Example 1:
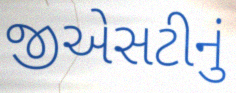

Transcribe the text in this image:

જીએસટીનું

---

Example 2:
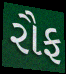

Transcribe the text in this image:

રૌફ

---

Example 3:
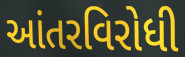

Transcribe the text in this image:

આંતરવિરોધી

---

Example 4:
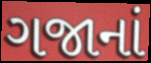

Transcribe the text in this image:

ગજાનાં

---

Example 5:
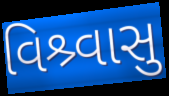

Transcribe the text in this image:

વિશ્ર્વાસુ